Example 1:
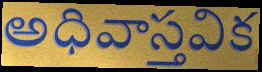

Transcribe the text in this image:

అధివాస్తవిక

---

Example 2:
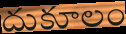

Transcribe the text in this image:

దుకూలం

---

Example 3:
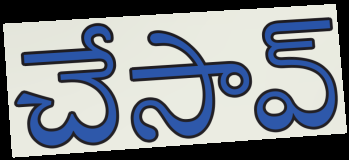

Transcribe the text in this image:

చేసావ్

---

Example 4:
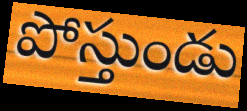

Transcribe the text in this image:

పోస్తుండు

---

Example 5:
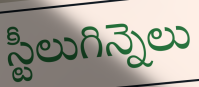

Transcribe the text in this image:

స్టీలుగిన్నెలు